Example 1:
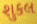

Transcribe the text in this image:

શુકલ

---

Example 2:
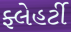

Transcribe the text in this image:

ફ્લેહર્ટી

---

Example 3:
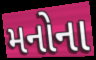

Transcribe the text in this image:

મનોના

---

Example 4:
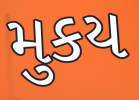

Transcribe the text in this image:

મુકય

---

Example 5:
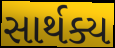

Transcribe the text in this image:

સાર્થક્ય